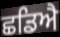
ਛਡਿਐ